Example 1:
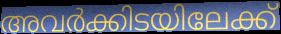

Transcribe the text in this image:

അവർക്കിടയിലേക്ക്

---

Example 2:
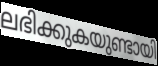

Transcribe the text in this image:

ലഭിക്കുകയുണ്ടായി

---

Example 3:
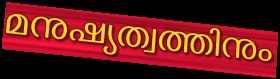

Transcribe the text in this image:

മനുഷ്യത്വത്തിനും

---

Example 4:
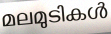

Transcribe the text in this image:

മലമുടികൾ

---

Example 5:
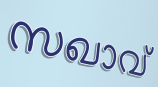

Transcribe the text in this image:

സഖാവ്